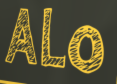
ALo